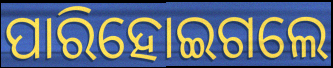
ପାରିହୋଇଗଲେ